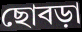
ছোবড়া